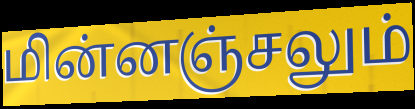
மின்னஞ்சலும்